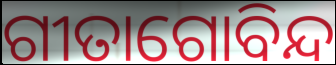
ଗୀତାଗୋବିନ୍ଦ